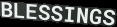
BLESSINGS